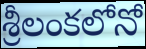
శ్రీలంకలోనో